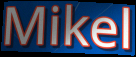
Mikel